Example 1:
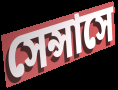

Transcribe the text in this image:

সেন্সাসে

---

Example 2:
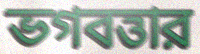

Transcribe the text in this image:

ভগবত্তার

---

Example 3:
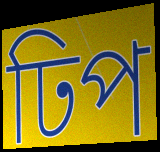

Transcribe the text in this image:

ঢিপ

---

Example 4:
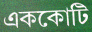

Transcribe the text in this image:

এককোটি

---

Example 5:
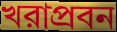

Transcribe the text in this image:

খরাপ্রবন